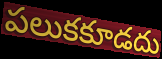
పలుకకూడదు